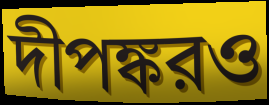
দীপঙ্করও